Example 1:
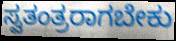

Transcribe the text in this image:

ಸ್ವತಂತ್ರರಾಗಬೇಕು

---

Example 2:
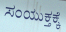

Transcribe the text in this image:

ಸಂಯುಕ್ತಕ್ಕೆ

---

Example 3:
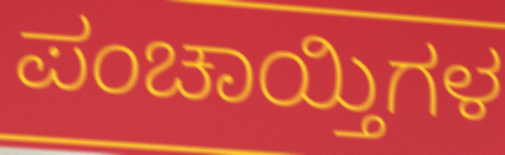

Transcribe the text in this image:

ಪಂಚಾಯ್ತಿಗಳ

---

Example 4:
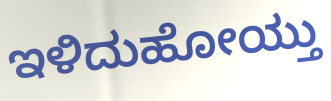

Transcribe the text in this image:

ಇಳಿದುಹೋಯ್ತು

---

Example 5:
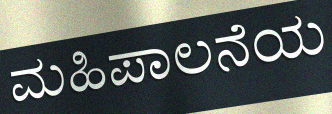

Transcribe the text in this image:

ಮಹಿಪಾಲನೆಯ